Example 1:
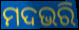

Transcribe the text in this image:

ମଦଭରି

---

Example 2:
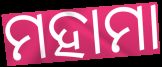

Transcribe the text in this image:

ମହାମା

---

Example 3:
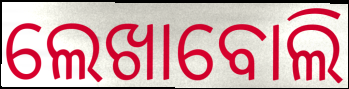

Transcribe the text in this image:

ଲେଖାବୋଲି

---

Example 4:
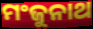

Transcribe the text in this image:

ମଂଜୁନାଥ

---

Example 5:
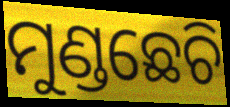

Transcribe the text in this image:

ମୁଣ୍ଡଛେଚି